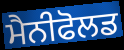
ਮੈਨੀਫੋਲਡ